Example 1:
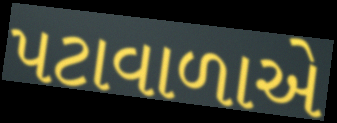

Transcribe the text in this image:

પટાવાળાએ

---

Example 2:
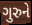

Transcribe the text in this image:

ગુરુને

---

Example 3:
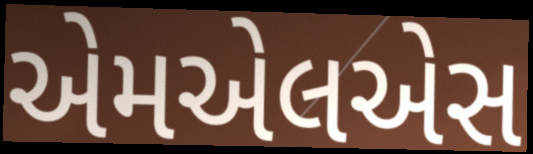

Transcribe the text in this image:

એમએલએસ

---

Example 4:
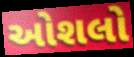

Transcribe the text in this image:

ઓશલો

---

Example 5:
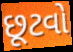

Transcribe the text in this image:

છૂટવો